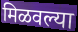
मिळवल्या